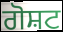
ਗੋਸ਼ਟ